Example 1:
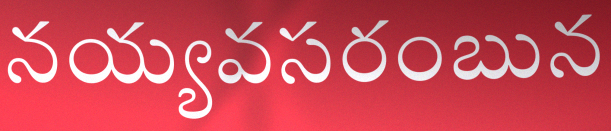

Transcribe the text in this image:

నయ్యవసరంబున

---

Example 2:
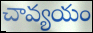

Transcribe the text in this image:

చావ్యయం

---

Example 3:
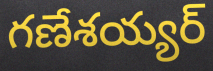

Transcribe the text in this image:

గణేశయ్యర్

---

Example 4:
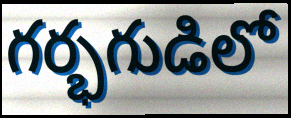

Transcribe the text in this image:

గర్భగుడిలో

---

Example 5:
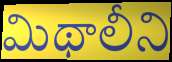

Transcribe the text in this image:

మిథాలీని